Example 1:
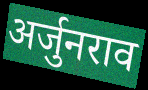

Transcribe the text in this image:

अर्जुनराव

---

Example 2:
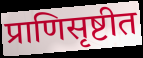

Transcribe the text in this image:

प्राणिसृष्टीत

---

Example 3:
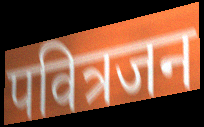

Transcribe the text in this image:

पवित्रजन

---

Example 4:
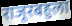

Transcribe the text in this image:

राजूरबहुला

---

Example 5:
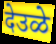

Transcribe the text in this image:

देउळे